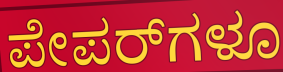
ಪೇಪರ್‌ಗಳೂ